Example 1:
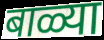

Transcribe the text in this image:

बाळ्या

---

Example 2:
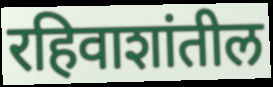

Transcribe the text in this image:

रहिवाशांतील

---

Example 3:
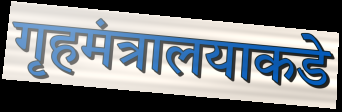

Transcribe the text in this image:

गृहमंत्रालयाकडे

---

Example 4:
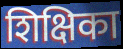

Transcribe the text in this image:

शिक्षिका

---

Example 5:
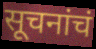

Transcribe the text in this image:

सूचनांचं